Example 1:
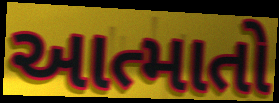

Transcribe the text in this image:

આત્માતો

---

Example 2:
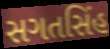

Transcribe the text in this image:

સગતસિંહ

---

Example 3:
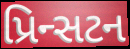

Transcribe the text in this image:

પ્રિન્સટન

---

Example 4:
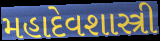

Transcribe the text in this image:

મહાદેવશાસ્ત્રી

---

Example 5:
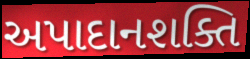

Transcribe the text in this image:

અપાદાનશક્તિ